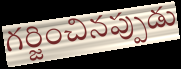
గర్జించినప్పుడు